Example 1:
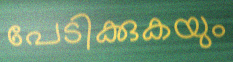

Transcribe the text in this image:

പേടിക്കുകയും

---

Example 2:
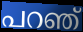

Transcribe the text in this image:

പറഞ്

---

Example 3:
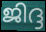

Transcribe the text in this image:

ജിദ്ദ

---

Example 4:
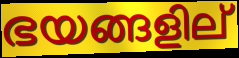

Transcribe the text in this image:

ഭയങ്ങളില്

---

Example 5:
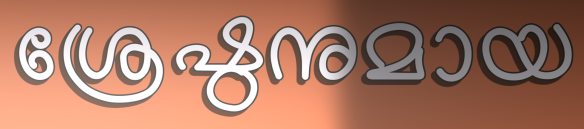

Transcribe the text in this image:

ശ്രേഷ്ഠനുമായ